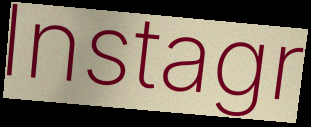
Instagr